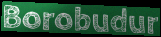
Borobudur